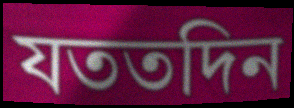
যততদিন